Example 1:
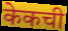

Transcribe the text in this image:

केकची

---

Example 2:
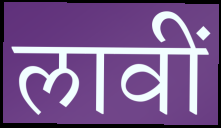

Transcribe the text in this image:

लावीं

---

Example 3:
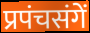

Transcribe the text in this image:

प्रपंचसंगें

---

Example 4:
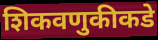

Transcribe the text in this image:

शिकवणुकीकडे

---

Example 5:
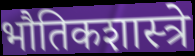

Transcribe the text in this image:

भौतिकशास्त्रे